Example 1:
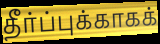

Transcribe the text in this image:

தீர்ப்புக்காகக்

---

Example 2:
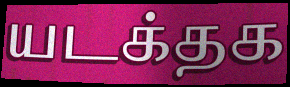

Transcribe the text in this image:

யடக்தக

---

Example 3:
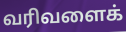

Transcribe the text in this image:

வரிவளைக்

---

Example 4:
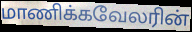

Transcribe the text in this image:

மாணிக்கவேலரின்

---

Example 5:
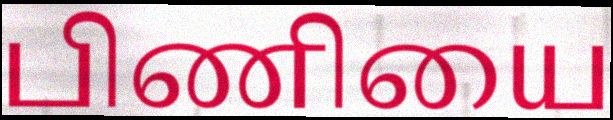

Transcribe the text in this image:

பிணியை